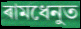
ৰামধেনুত